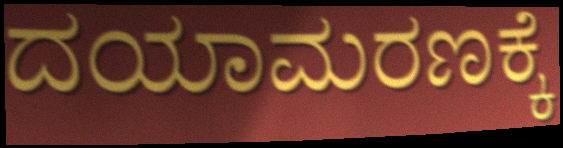
ದಯಾಮರಣಕ್ಕೆ